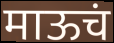
माऊचं